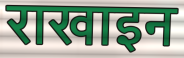
राखाइन